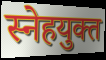
स्नेहयुक्त